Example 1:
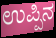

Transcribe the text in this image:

ಉಪ್ಪಿನ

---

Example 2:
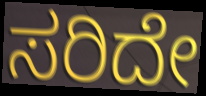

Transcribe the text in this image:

ಸರಿದೇ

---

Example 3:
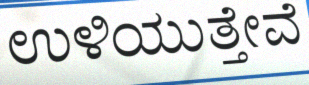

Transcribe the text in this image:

ಉಳಿಯುತ್ತೇವೆ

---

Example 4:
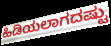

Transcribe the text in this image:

ಹಿಡಿಯಲಾಗದಷ್ಟು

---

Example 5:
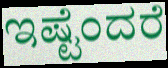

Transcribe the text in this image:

ಇಷ್ಟೆಂದರೆ